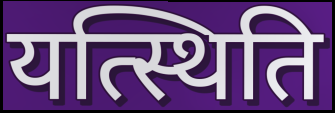
यत्स्थिति